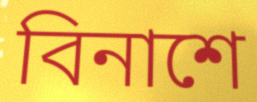
বিনাশে